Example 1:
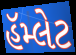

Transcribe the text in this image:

હૅમ્લેટ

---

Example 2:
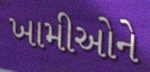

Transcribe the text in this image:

ખામીઓને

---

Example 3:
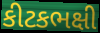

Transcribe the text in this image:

કીટકભક્ષી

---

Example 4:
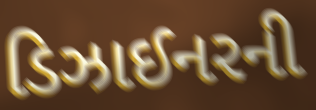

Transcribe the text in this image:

ડિઝાઈનરની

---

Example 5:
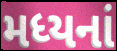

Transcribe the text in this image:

મધ્યનાં